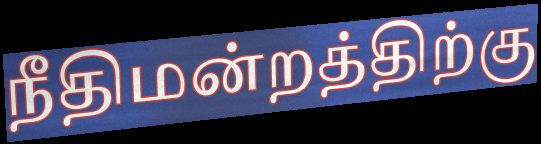
நீதிமன்றத்திற்கு